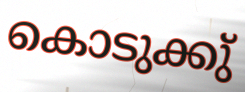
കൊടുക്കു്